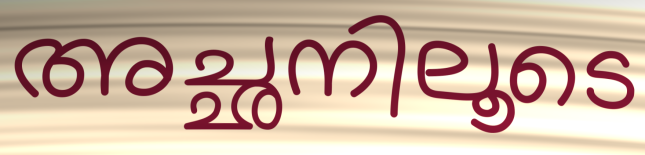
അച്ഛനിലൂടെ